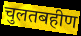
चुलतबहीण